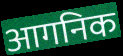
आगनिक